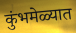
कुंभमेळ्यात